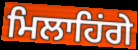
ਮਿਲਾਹਿਂਗੇ